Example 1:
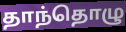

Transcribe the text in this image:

தாந்தொழு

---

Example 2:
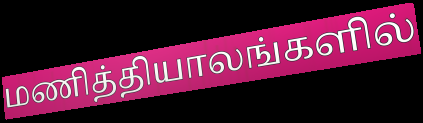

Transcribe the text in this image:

மணித்தியாலங்களில்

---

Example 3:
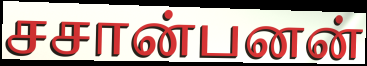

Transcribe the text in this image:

சசான்பனன்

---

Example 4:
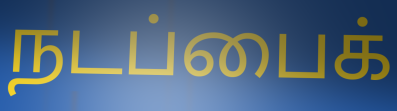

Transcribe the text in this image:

நடப்பைக்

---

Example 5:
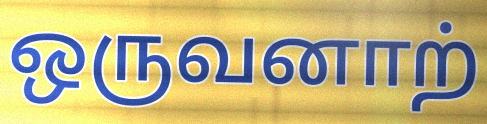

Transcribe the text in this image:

ஒருவனாற்